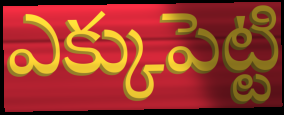
ఎక్కుపెట్టి